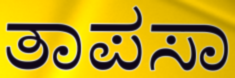
ತಾಪಸಾ